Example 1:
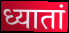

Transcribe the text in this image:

ध्यातां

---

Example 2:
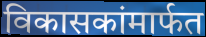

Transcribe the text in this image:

विकासकांमार्फत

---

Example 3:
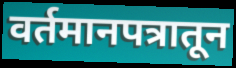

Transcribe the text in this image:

वर्तमानपत्रातून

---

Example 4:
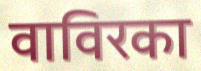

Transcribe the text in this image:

वाविरका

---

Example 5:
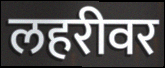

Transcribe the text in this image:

लहरीवर